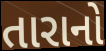
તારાનો